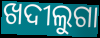
ଖଦୀଲୁଗା